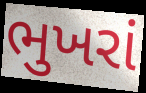
ભુખરાં